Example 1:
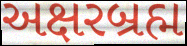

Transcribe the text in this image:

અક્ષરબ્રહ્મ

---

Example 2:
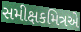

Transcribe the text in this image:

સમીક્ષકમિત્રએ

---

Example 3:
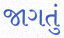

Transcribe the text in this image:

જાગતું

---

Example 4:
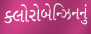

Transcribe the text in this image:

ક્લોરોબેન્ઝિનનું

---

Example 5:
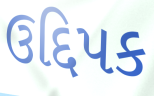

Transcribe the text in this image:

ઉદ્દિપક